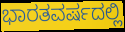
ಭಾರತವರ್ಷದಲ್ಲಿ